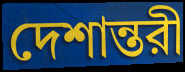
দেশান্তরী